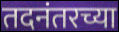
तदनंतरच्या